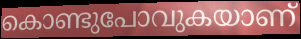
കൊണ്ടുപോവുകയാണ്